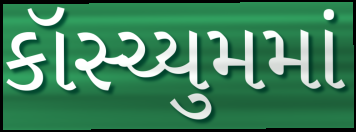
કૉસ્ચ્યુમમાં